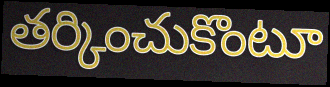
తర్కించుకొంటూ